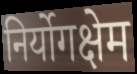
निर्योगक्षेम